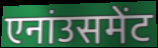
एनांउसमेंट